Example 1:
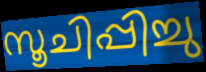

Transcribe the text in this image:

സൂചിപ്പിച്ചു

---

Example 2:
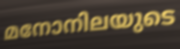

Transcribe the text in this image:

മനോനിലയുടെ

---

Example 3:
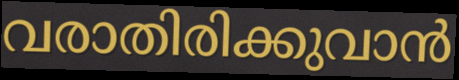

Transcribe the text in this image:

വരാതിരിക്കുവാൻ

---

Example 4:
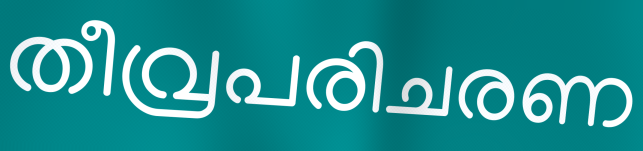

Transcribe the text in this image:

തീവ്രപരിചരണ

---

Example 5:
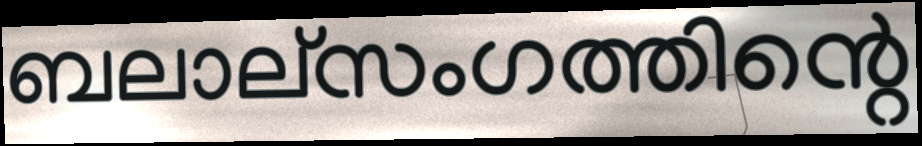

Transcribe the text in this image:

ബലാല്സംഗത്തിന്റെ